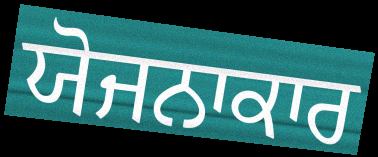
ਯੋਜਨਾਕਾਰ